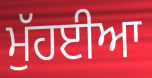
ਮੁੱਹਈਆ